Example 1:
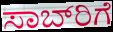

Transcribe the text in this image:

ಸಾಬ್‌ರಿಗೆ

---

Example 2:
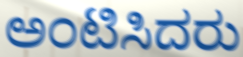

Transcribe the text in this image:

ಅಂಟಿಸಿದರು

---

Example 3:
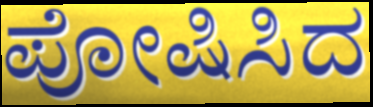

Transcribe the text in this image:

ಪೋಷಿಸಿದ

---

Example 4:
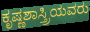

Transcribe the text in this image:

ಕೃಷ್ಣಶಾಸ್ತ್ರಿಯವರು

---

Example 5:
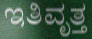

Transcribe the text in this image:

ಇತಿವೃತ್ತ